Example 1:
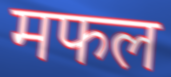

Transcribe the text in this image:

मफल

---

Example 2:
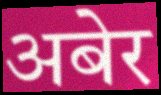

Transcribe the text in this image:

अबेर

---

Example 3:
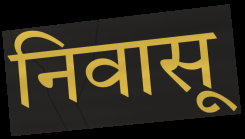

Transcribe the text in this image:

निवासू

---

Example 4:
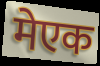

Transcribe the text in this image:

मेएक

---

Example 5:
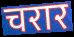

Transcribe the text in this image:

चरार